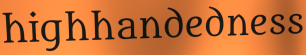
highhandedness